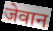
जेवान